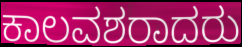
ಕಾಲವಶರಾದರು